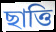
ছাত্তি